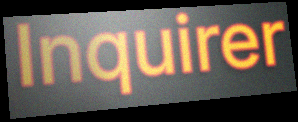
Inquirer